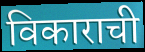
विकाराची